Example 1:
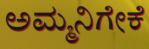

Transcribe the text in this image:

ಅಮ್ಮನಿಗೇಕೆ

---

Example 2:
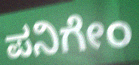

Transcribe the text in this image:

ಪನಿಗೇಂ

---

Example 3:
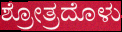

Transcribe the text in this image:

ಶ್ರೋತ್ರದೊಳು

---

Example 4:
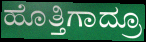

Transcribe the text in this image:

ಹೊತ್ತಿಗಾದ್ರೂ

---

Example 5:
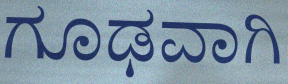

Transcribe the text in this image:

ಗೂಢವಾಗಿ